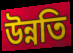
উন্নতি